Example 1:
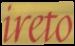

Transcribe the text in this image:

ireto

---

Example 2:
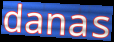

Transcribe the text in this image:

danas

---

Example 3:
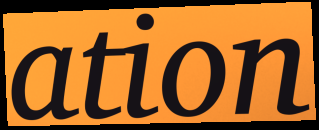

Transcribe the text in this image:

ation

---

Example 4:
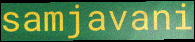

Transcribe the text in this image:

samjavani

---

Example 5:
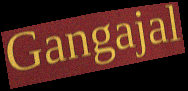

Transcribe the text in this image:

Gangajal